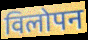
विलोपन